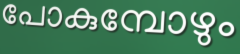
പോകുമ്പോഴും